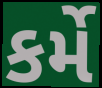
કર્મે